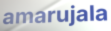
amarujala